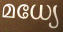
മധ്യേ